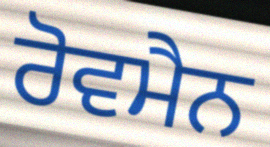
ਰੋਵਮੈਨ